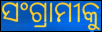
ସଂଗ୍ରାମୀକୁ